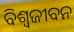
ବିଶ୍ଵଜୀବନ